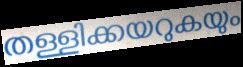
തള്ളിക്കയറുകയും